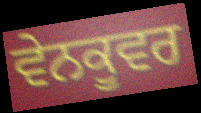
ਵੇਨਕੂਵਰ